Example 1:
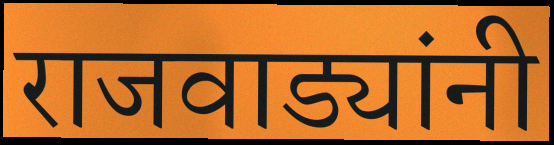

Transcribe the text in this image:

राजवाड्यांनी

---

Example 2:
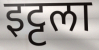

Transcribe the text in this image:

इट्टला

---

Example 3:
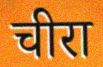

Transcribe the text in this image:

चीरा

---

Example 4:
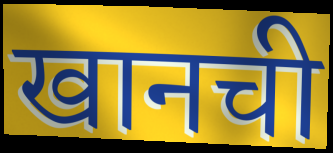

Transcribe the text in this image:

खानची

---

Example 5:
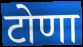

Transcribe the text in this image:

टोणा